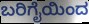
ಬರಿಗೈಯಿಂದ